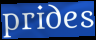
prides